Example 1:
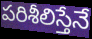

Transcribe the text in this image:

పరిశీలిస్తేనే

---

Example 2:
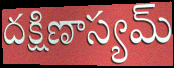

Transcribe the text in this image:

దక్షిణాస్యమ్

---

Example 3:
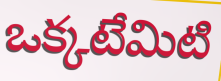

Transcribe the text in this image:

ఒక్కటేమిటి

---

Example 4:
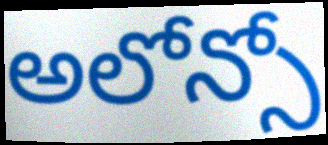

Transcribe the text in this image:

అలోన్సో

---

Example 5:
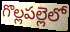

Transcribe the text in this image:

గొల్లపల్లెలో